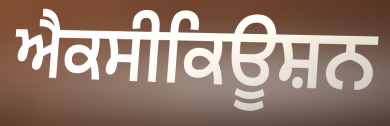
ਐਕਸੀਕਿਊਸ਼ਨ